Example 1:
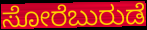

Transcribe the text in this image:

ಸೋರೆಬುರುಡೆ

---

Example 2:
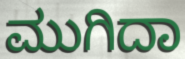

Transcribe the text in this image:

ಮುಗಿದಾ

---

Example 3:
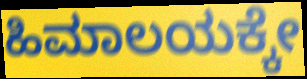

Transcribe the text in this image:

ಹಿಮಾಲಯಕ್ಕೇ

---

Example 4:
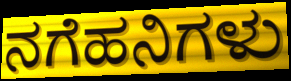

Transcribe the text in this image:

ನಗೆಹನಿಗಳು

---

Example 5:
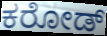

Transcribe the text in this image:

ಕರೋಡ್